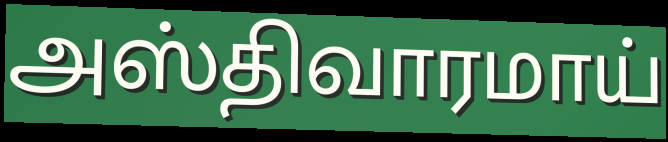
அஸ்திவாரமாய்